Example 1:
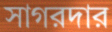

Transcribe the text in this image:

সাগরদার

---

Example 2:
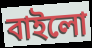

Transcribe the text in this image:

বাইলো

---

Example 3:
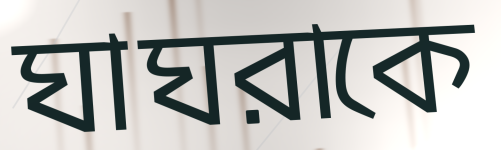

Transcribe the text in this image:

ঘাঘরাকে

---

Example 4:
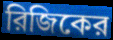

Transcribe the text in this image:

রিজিকের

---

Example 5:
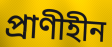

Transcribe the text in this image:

প্রাণীহীন